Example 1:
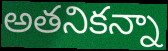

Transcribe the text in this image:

అతనికన్నా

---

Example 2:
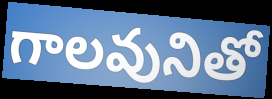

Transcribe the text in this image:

గాలవునితో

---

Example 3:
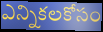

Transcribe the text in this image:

ఎన్నికలకోసం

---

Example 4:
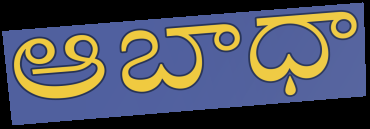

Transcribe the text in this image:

ఆబాధా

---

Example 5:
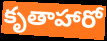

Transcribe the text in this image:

కృతాహారో